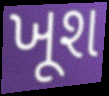
ખૂશ